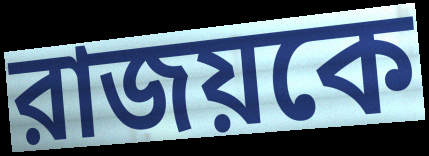
রাজয়কে